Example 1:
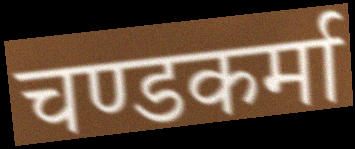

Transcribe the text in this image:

चण्डकर्मा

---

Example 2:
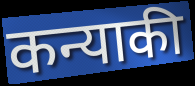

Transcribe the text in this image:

कन्याकी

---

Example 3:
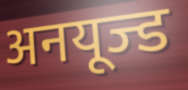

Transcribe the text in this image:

अनयूज्ड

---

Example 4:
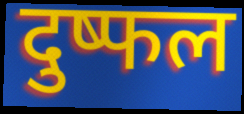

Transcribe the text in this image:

दुष्फल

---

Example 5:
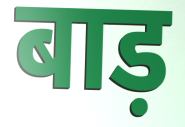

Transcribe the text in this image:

बाड़